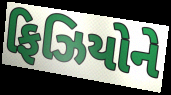
ફિઝિયોને